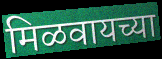
मिळवायच्या